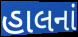
હાલનાં